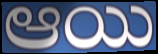
ఆయి